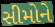
સીમોને